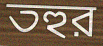
তহুর